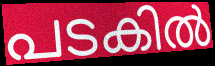
പടകിൽ